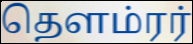
தௌம்ரர்